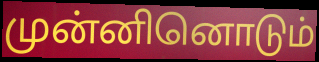
முன்னினொடும்